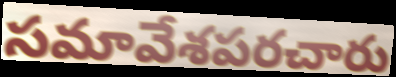
సమావేశపరచారు